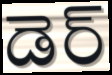
డెర్